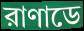
রাণাডে